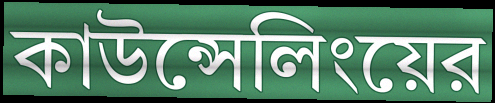
কাউন্সেলিংয়ের